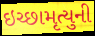
ઇચ્છામૃત્યુની